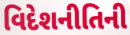
વિદેશનીતિની